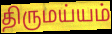
திருமய்யம்